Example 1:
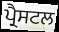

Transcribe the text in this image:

ਪ੍ਰੈਸਟਲ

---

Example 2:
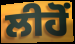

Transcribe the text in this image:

ਲੀਹੋਂ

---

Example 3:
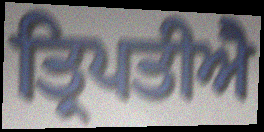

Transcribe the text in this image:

ਤ੍ਰਿਪਤੀਐ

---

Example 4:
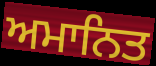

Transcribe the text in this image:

ਅਮਾਨਿਤ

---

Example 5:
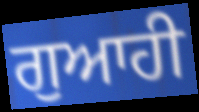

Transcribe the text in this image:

ਗੁਆਹੀ